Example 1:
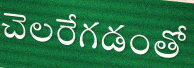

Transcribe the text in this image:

చెలరేగడంతో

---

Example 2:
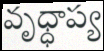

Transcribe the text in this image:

వృధ్ధాప్య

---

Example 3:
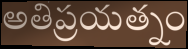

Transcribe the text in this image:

అతిప్రయత్నం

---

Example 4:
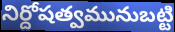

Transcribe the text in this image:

నిర్దోషత్వమునుబట్టి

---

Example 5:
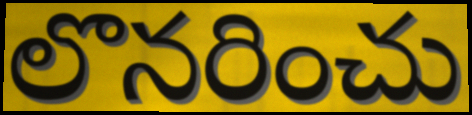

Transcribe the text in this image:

లొనరించు